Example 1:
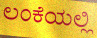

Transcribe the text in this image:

ಲಂಕೆಯಲ್ಲಿ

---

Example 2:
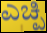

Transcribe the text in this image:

ಎಚ್ಪಿ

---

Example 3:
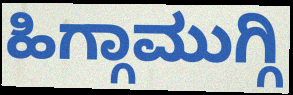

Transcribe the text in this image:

ಹಿಗ್ಗಾಮುಗ್ಗಿ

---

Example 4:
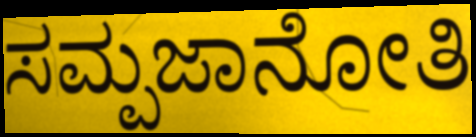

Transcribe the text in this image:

ಸಮ್ಪಜಾನೋತಿ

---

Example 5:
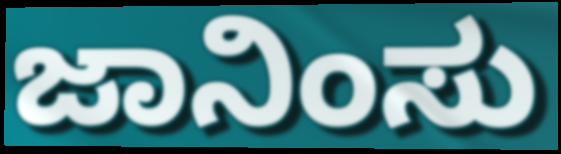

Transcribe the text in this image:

ಜಾನಿಂಸು